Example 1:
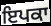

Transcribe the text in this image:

ਇਪਕਾ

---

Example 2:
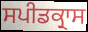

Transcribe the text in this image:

ਸਪੀਡਕ੍ਰਾਸ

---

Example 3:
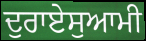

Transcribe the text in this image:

ਦੁਰਾਏਸੁਆਮੀ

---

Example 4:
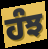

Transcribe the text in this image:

ਹੰਝ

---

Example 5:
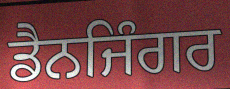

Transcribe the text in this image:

ਡੈਨਜਿੰਗਰ